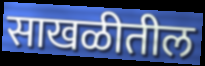
साखळीतील